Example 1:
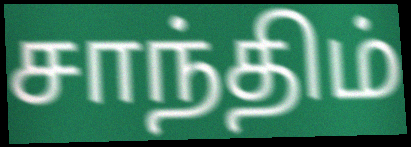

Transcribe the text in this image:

சாந்திம்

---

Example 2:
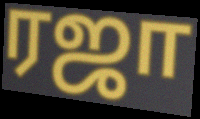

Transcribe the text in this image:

ரஜா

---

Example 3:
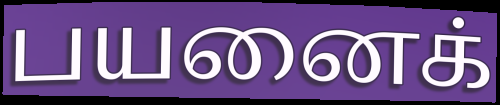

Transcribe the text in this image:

பயனைக்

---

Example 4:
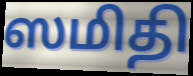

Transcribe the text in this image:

ஸமிதி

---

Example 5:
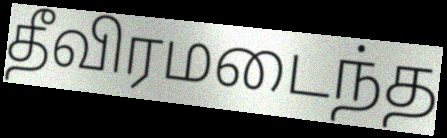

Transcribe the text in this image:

தீவிரமடைந்த